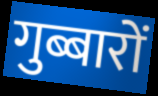
गुब्बारों